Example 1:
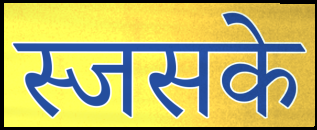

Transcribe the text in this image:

स्जसके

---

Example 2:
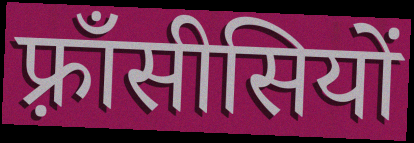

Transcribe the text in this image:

फ़्राँसीसियों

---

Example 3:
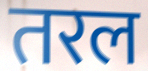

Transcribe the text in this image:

तरल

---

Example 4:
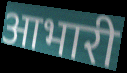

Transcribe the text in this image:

आभारी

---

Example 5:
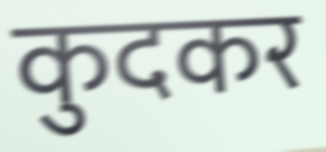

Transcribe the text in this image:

कुदकर